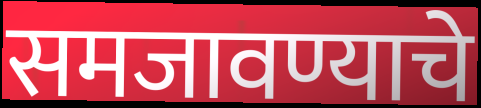
समजावण्याचे